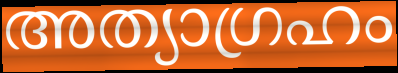
അത്യാഗ്രഹം